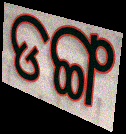
ଡଙ୍ଗ